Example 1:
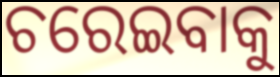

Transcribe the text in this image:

ଚରେଇବାକୁ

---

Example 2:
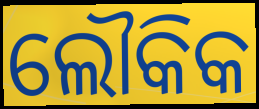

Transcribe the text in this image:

ଲୌକିକ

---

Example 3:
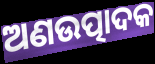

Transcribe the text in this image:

ଅଣଉତ୍ପାଦକ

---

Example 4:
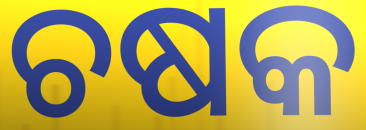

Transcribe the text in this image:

ଚଷକ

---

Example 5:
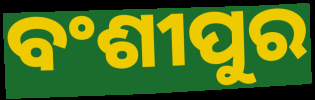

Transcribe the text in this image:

ବଂଶୀପୁର